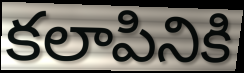
కలాపినికి